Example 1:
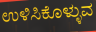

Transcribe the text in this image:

ಉಳಿಸಿಕೊಳ್ಳುವ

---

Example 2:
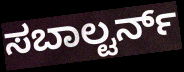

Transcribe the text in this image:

ಸಬಾಲ್ಟರ್ನ್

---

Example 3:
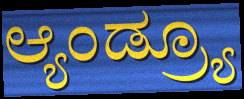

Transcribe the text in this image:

ಆ್ಯಂಡ್ರ್ಯೂ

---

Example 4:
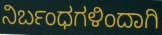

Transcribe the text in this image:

ನಿರ್ಬಂಧಗಳಿಂದಾಗಿ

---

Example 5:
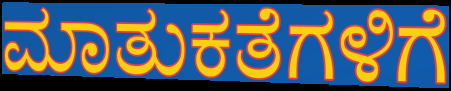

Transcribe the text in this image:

ಮಾತುಕತೆಗಳಿಗೆ